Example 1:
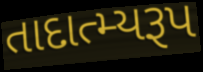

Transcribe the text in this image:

તાદાત્મ્યરૂપ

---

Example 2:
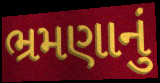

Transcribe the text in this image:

ભ્રમણાનું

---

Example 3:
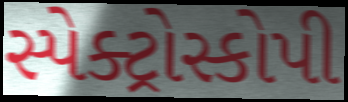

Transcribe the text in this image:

સ્પેક્ટ્રોસ્કોપી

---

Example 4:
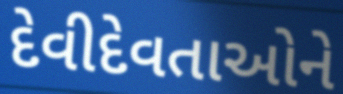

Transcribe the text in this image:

દેવીદેવતાઓને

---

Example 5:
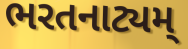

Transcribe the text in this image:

ભરતનાટ્યમ્